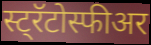
स्ट्रॅटोस्फीअर